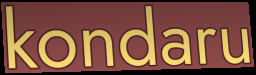
kondaru